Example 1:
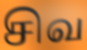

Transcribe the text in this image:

சிவ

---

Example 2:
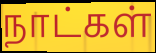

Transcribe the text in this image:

நாட்கள்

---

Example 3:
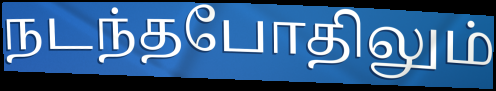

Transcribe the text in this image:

நடந்தபோதிலும்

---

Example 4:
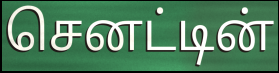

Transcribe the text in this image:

செனட்டின்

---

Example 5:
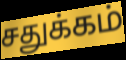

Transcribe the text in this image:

சதுக்கம்